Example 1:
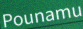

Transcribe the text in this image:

Pounamu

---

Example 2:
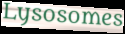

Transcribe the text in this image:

Lysosomes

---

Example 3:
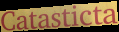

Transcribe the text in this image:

Catasticta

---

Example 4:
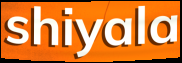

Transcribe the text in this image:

shiyala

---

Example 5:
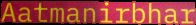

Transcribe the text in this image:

Aatmanirbhar